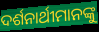
ଦର୍ଶନାର୍ଥୀମାନଙ୍କୁ